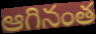
ఆగినంత